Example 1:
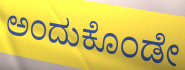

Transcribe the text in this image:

ಅಂದುಕೊಂಡೇ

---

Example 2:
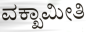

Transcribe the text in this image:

ವಕ್ಖಾಮೀತಿ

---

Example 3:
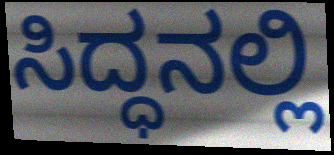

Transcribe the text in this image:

ಸಿದ್ಧನಲ್ಲಿ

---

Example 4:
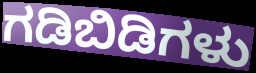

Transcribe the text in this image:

ಗಡಿಬಿಡಿಗಳು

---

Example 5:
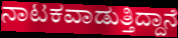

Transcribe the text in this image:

ನಾಟಕವಾಡುತ್ತಿದ್ದಾನೆ